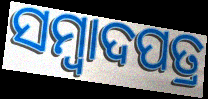
ସମ୍ୱାଦପତ୍ର